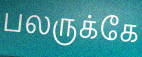
பலருக்கே